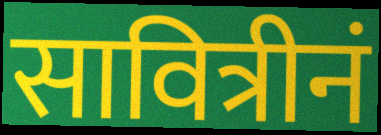
सावित्रीनं